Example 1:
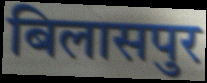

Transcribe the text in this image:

बिलासपुर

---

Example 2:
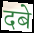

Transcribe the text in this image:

दबे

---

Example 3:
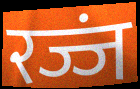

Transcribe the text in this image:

रज्जं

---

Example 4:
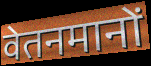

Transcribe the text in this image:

वेतनमानों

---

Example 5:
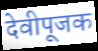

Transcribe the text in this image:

देवीपूजक